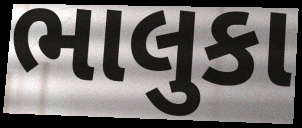
ભાલુકા